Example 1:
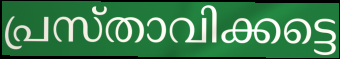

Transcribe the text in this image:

പ്രസ്താവിക്കട്ടെ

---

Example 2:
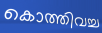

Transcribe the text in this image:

കൊത്തിവച്ച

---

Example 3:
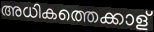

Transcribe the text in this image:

അധികത്തെക്കാള്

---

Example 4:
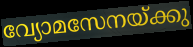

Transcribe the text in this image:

വ്യോമസേനയ്ക്കു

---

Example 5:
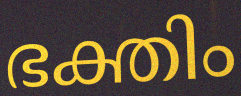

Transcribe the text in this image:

ഭക്തിം